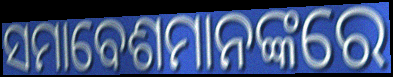
ସମାବେଶମାନଙ୍କରେ